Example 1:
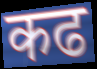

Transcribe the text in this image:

कढ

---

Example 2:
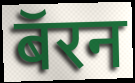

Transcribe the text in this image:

बॅरन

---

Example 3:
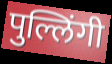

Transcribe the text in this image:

पुल्लिंगी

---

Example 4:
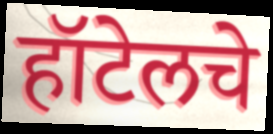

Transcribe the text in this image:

हॉटेलचे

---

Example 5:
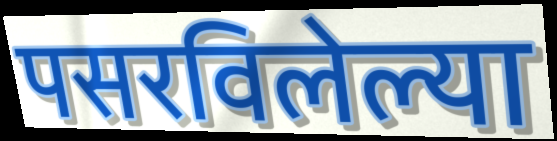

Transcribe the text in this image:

पसरविलेल्या